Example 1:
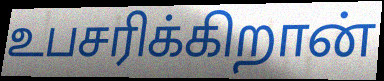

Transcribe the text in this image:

உபசரிக்கிறான்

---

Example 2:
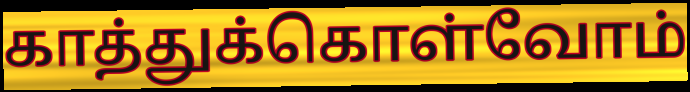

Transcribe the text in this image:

காத்துக்கொள்வோம்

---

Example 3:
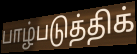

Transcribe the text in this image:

பாழ்படுத்திக்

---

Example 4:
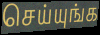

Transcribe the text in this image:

செய்யுங்க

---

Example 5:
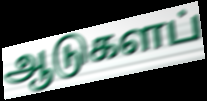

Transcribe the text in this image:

ஆடுகளப்